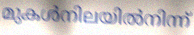
മുകൾനിലയിൽനിന്ന്